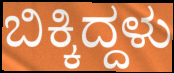
ಬಿಕ್ಕಿದ್ದಳು